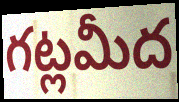
గట్లమీద